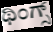
ಥಿಂಗ್ಸ್